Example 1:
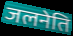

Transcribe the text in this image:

जलनेति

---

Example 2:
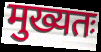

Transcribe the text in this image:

मुख्यतः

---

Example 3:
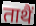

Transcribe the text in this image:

ताथैं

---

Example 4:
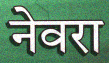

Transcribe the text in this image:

नेवरा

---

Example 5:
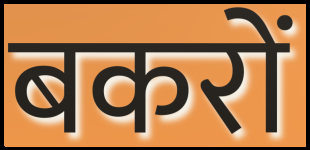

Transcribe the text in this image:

बकरों